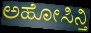
ಅಹೋಸಿನ್ತಿ